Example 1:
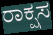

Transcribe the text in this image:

ರಾಕ್ಷಸ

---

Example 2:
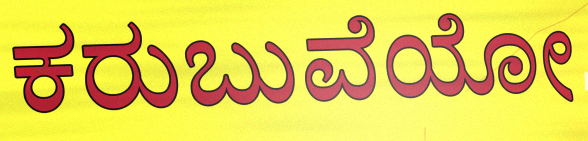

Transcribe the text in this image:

ಕರುಬುವೆಯೋ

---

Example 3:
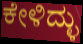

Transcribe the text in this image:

ಕೇಳಿದ್ಳು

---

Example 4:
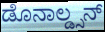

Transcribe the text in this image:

ಡೊನಾಲ್ಡ್ಸನ್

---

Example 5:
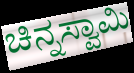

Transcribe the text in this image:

ಚಿನ್ನಸ್ವಾಮಿ